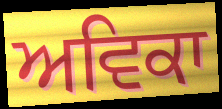
ਅਵਿਕਾ